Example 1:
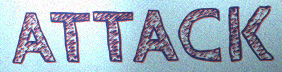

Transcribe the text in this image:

ATTACK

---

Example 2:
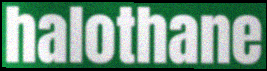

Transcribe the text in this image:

halothane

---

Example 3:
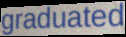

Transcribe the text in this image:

graduated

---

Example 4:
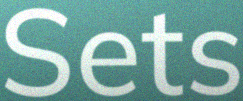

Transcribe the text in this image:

Sets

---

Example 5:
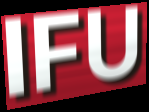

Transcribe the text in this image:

IFU